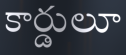
కార్డులూ